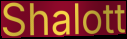
Shalott